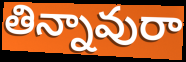
తిన్నావురా